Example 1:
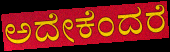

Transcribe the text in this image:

ಅದೇಕೆಂದರೆ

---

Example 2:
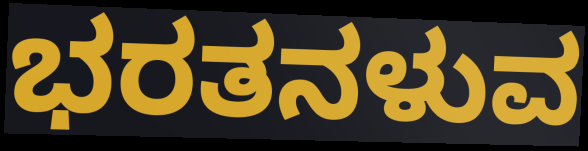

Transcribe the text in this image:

ಭರತನಳುವ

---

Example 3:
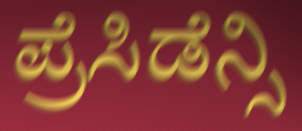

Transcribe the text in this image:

ಪ್ರೆಸಿಡೆನ್ಸಿ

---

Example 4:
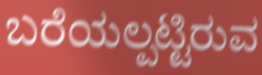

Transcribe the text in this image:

ಬರೆಯಲ್ಪಟ್ಟಿರುವ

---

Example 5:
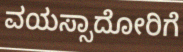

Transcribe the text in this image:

ವಯಸ್ಸಾದೋರಿಗೆ